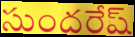
సుందరేష్